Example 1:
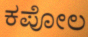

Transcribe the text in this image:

ಕಪೋಲ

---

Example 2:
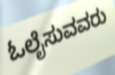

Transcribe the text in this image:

ಓಲೈಸುವವರು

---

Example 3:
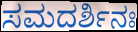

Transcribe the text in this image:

ಸಮದರ್ಶಿನಃ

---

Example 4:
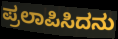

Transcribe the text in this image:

ಪ್ರಲಾಪಿಸಿದನು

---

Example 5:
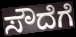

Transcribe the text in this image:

ಸೌದೆಗೆ